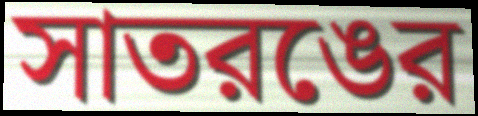
সাতরঙের